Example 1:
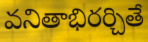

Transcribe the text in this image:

వనితాభిరర్చితే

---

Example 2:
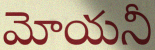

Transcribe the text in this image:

మోయనీ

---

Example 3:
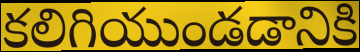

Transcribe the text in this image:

కలిగియుండడానికి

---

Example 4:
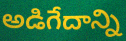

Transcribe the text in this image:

అడిగేదాన్ని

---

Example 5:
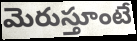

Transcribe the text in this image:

మెరుస్తూంటే